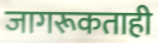
जागरूकताही